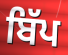
ਬਿੱਪ